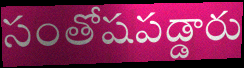
సంతోషపడ్డారు